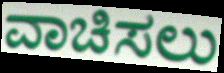
ವಾಚಿಸಲು